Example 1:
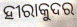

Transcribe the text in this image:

ହୀରାକୁଦର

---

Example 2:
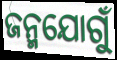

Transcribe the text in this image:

ଜନ୍ମଯୋଗୁଁ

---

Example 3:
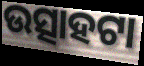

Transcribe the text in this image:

ଉତ୍ସାହଟା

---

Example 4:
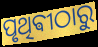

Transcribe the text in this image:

ପୃଥିଵୀଠାରୁ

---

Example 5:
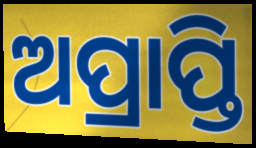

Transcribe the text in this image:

ଅପ୍ରାପ୍ତି